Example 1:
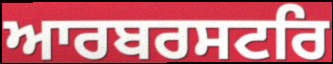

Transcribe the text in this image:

ਆਰਬਰਸਟਰਿ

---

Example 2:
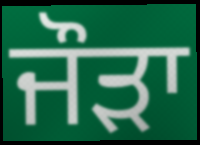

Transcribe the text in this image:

ਜੌੜਾ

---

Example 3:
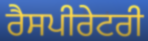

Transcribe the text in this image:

ਰੈਸਪੀਰੇਟਰੀ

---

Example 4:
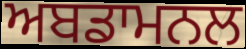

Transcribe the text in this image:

ਅਬਡਾਮਨਲ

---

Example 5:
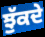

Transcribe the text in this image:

ਝੁੱਕਦੇ